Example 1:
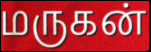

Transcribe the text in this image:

மருகன்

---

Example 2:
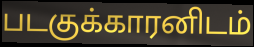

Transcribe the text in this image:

படகுக்காரனிடம்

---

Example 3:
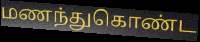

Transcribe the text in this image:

மணந்துகொண்ட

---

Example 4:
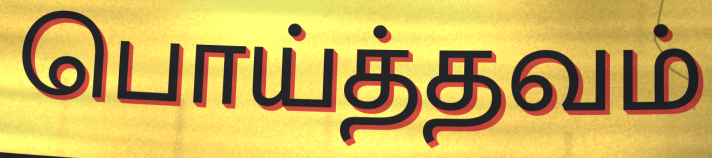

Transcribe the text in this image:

பொய்த்தவம்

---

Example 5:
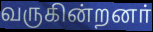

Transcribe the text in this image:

வருகின்றனர்